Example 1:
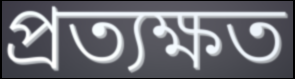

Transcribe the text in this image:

প্রত্যক্ষত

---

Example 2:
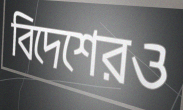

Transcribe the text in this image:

বিদেশেরও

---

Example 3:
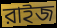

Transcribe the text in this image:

রাইজ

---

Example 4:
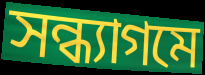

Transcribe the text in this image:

সন্ধ্যাগমে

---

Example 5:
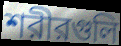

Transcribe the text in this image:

শরীরগুলি